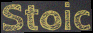
Stoic